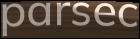
parsec